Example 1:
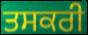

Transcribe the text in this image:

ਤਸਕਰੀ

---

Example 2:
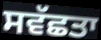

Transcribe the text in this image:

ਸਵੱਛਤਾ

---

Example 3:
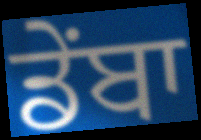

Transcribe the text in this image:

ਡੇਂਬਾ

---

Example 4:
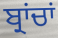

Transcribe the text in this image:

ਬ੍ਰਾਂਚਾਂ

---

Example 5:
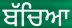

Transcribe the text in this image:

ਬੱਚਿਆ